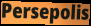
Persepolis